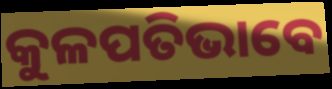
କୁଳପତିଭାବେ